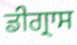
ਡੀਗ੍ਰਾਸ